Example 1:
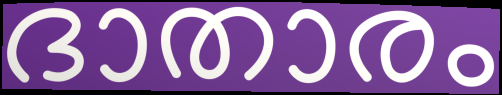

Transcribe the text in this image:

ദാതാരം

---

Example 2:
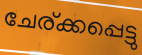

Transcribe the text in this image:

ചേര്ക്കപ്പെട്ടു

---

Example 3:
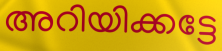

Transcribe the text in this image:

അറിയിക്കട്ടേ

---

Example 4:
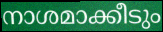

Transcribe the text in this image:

നാശമാക്കീടും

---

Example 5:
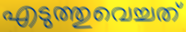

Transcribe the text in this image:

എടുത്തുവെച്ചത്